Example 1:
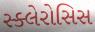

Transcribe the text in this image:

સ્ક્લેરોસિસ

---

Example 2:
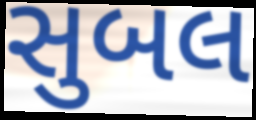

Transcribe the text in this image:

સુબલ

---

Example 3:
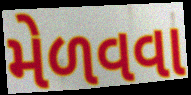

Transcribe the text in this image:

મેળવવા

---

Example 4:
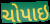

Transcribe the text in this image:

ચોપાઇ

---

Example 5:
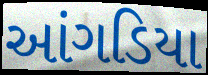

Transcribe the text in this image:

આંગડિયા